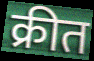
क्रीत